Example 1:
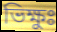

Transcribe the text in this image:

ভিক্ষুঃ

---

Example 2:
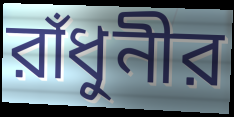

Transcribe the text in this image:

রাঁধুনীর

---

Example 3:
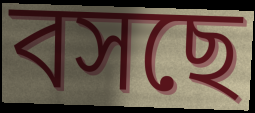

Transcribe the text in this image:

বসছে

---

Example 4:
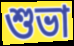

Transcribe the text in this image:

শুভা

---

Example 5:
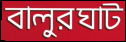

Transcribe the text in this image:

বালুরঘাট